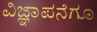
ವಿಜ್ಞಾಪನೆಗೂ